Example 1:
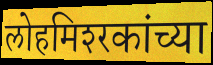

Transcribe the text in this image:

लोहमिश्रकांच्या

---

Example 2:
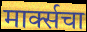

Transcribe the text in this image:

मार्क्सचा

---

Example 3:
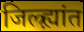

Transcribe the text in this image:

जिल्ह्य़ांत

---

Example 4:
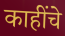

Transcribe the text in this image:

काहींचे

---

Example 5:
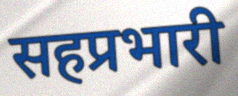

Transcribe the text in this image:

सहप्रभारी